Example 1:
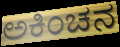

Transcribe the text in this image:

ಅಕಿಂಚನ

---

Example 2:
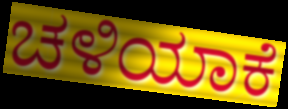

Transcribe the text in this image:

ಚಳಿಯಾಕೆ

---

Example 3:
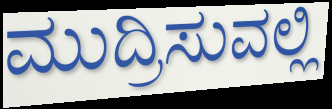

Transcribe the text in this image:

ಮುದ್ರಿಸುವಲ್ಲಿ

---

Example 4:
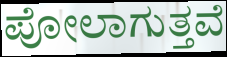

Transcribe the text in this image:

ಪೋಲಾಗುತ್ತವೆ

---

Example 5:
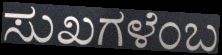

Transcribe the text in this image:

ಸುಖಗಳೆಂಬ